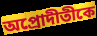
অপ্রোদীতীকে